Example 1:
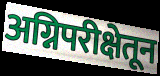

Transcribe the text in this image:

अग्निपरीक्षेतून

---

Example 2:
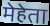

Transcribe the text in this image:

मेहेता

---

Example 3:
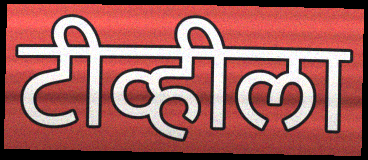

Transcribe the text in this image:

टीव्हीला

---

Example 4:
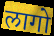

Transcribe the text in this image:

लागो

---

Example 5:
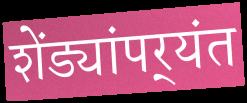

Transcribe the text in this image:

शेंड्यांपर्यंत